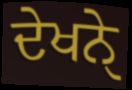
ਦੇਖਨੑੇ